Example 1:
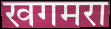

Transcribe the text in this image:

खगमरा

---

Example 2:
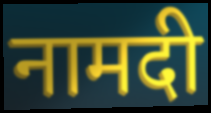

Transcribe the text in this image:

नामदी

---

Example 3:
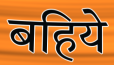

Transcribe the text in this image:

बहिये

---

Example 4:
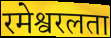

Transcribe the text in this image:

रमेश्वरलता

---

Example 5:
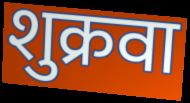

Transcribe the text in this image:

शुक्रवा